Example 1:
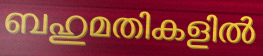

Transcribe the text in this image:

ബഹുമതികളിൽ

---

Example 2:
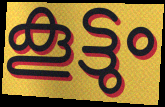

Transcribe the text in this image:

കൂട്ടും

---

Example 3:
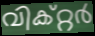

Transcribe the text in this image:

വിക്റ്റർ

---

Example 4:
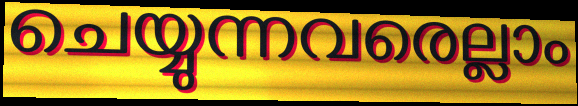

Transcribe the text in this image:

ചെയ്യുന്നവരെല്ലാം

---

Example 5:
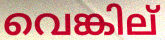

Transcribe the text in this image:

വെങ്കില്